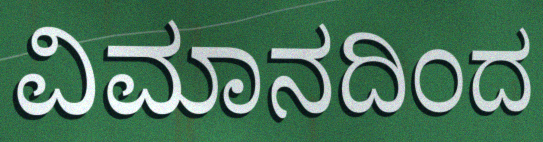
ವಿಮಾನದಿಂದ